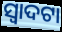
ସ୍ଵାଦଟା